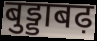
बुड्डाबढ़